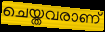
ചെയ്തവരാണ്